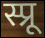
स्प्रू